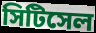
সিটিসেল